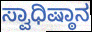
ಸ್ವಾಧಿಷ್ಠಾನ